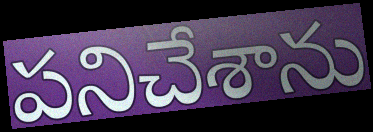
పనిచేశాను